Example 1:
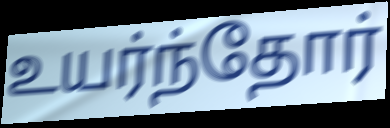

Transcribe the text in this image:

உயர்ந்தோர்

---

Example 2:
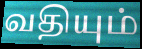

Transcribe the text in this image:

வதியும்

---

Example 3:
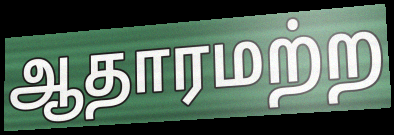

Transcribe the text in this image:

ஆதாரமற்ற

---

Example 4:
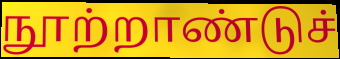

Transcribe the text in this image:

நூற்றாண்டுச்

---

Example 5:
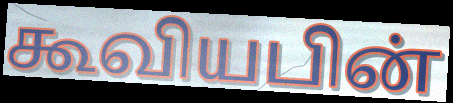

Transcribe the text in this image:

கூவியபின்